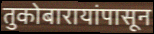
तुकोबारायांपासून